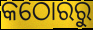
କଠୋରରୁ